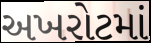
અખરોટમાં